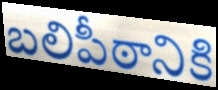
బలిపీఠానికి